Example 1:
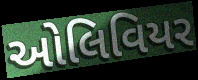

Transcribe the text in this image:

ઓલિવિયર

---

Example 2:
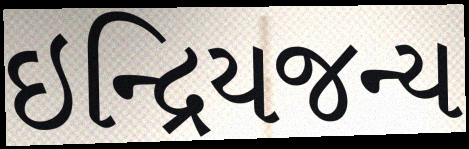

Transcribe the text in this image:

ઇન્દ્રિયજન્ય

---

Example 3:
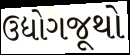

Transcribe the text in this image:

ઉદ્યોગજૂથો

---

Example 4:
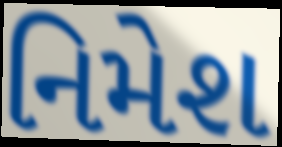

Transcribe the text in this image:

નિમેશ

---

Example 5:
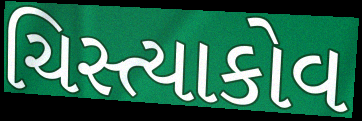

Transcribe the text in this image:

ચિસ્ત્યાકોવ